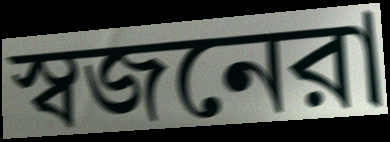
স্বজনেরা